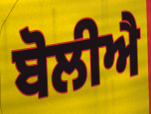
ਬੋਲੀਐ